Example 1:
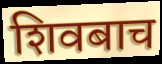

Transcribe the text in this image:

शिवबाच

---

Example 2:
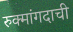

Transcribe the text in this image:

रुक्मांगदाची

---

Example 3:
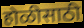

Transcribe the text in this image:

होळीसाठी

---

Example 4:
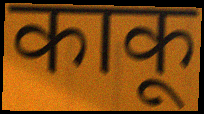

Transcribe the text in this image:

काकू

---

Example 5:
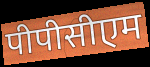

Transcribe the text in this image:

पीपीसीएम